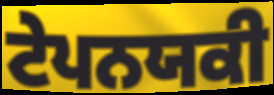
ਟੇਪਨਯਕੀ